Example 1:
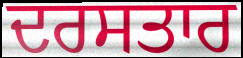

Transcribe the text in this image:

ਦਰਸਤਾਰ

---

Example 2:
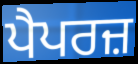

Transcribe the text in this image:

ਪੈਪਰਜ਼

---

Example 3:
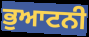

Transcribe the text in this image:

ਭੁਆਟਨੀ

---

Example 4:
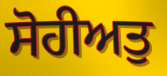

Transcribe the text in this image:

ਸੋਹੀਅਤੁ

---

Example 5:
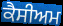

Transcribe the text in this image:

ਕੈਸੀਅਮ